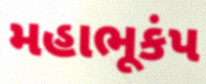
મહાભૂકંપ